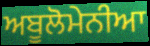
ਅਬੂਲੋਮੇਨੀਆ